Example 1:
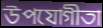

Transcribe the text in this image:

উপযোগীতা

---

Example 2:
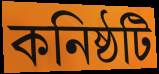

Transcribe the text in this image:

কনিষ্ঠটি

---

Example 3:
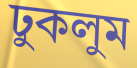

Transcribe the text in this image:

ঢুকলুম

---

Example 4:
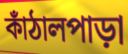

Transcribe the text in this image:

কাঁঠালপাড়া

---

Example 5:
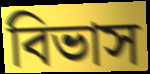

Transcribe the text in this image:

বিভাস